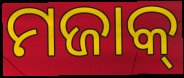
ମଜାକ୍